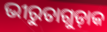
ଭୀରୁତାଗୁଡ଼ାକ